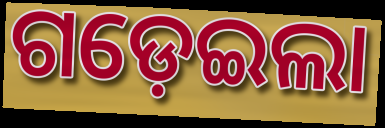
ଗଡ଼େଇଲା